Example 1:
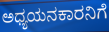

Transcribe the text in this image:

ಅಧ್ಯಯನಕಾರನಿಗೆ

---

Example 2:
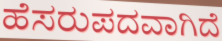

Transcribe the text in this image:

ಹೆಸರುಪದವಾಗಿದೆ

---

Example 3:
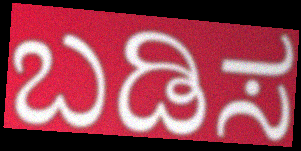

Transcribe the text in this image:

ಬಡಿಸ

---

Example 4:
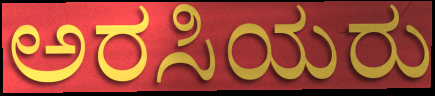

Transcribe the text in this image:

ಅರಸಿಯರು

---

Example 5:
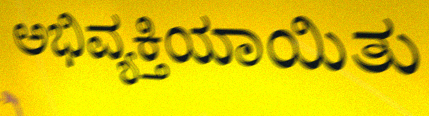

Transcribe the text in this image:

ಅಭಿವ್ಯಕ್ತಿಯಾಯಿತು